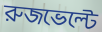
ৰুজভেল্টে